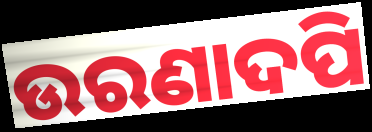
ଉରଣାଦପି